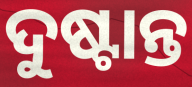
ଦୁଷ୍ଟାନ୍ତ